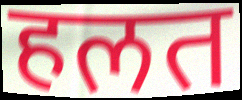
हलत